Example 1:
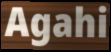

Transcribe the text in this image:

Agahi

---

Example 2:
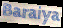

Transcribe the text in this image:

Baraiya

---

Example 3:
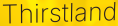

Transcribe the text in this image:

Thirstland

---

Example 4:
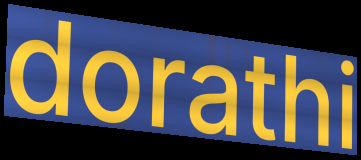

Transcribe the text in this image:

dorathi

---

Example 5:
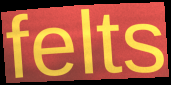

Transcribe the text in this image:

felts